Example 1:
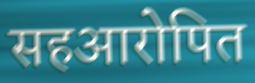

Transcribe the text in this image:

सहआरोपित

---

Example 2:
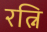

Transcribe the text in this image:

रत्नि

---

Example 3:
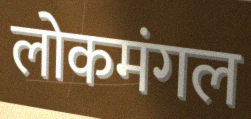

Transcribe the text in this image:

लोकमंगल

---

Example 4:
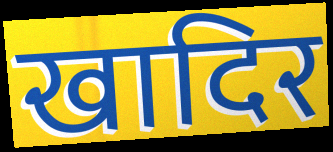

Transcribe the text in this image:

खादिर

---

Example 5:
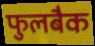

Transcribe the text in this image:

फुलबैक